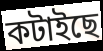
কটাইছে